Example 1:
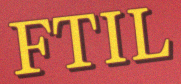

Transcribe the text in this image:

FTIL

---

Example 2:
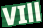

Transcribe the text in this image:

VIll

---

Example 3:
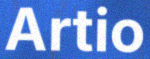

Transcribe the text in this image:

Artio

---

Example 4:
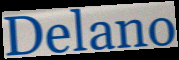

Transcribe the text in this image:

Delano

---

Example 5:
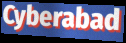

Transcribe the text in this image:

Cyberabad